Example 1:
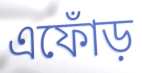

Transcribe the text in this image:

এফোঁড়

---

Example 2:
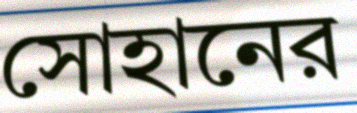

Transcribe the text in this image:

সোহানের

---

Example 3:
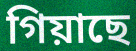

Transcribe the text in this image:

গিয়াছে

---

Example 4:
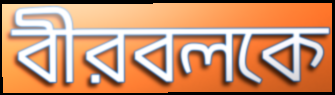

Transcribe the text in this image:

বীরবলকে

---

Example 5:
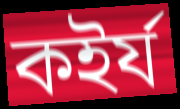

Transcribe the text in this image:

কইর্য